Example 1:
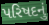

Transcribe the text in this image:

પરિષદનું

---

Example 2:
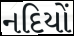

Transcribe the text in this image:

નદિયોં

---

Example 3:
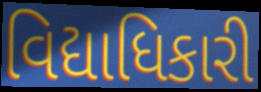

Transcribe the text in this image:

વિદ્યાધિકારી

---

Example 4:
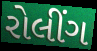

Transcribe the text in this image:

રોલીંગ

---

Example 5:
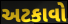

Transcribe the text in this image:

અટકાવો